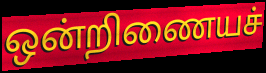
ஒன்றிணையச்